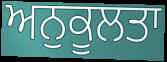
ਅਨੁਕੂਲਤਾ